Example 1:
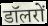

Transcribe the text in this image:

डॉलरों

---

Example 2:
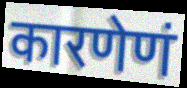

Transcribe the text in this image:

कारणेणं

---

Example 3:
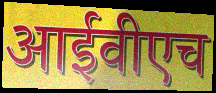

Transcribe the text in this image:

आईवीएच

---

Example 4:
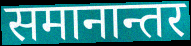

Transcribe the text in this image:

समानान्तर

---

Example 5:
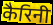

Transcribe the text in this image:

कैरिनी